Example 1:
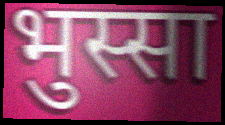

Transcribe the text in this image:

भुस्सा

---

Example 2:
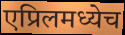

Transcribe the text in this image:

एप्रिलमध्येच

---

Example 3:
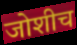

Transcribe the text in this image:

जोशीच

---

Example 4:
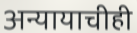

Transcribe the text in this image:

अन्यायाचीही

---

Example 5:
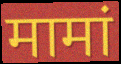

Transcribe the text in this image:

मामां